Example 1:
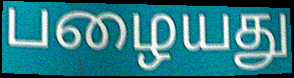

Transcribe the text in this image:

பழையது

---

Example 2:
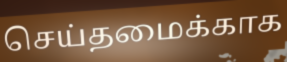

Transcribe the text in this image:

செய்தமைக்காக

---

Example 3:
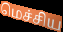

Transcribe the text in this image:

மெச்சிய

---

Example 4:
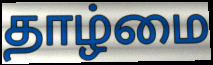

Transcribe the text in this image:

தாழ்மை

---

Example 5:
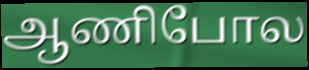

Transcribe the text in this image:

ஆணிபோல